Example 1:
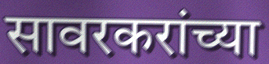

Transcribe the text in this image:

सावरकरांच्या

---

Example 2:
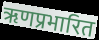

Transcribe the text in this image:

ॠणप्रभारित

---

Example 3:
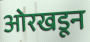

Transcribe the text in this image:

ओरखडून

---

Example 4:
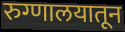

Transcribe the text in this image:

रुग्णालयातून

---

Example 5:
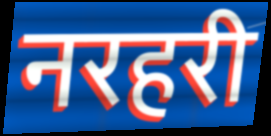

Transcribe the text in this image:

नरहरी